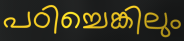
പഠിച്ചെങ്കിലും